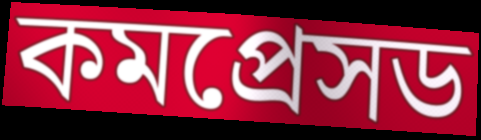
কমপ্রেসড